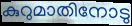
കുറുമാതിനോടു